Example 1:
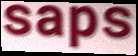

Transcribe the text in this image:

saps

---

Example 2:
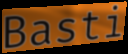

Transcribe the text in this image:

Basti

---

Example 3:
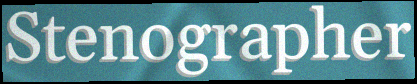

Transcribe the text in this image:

Stenographer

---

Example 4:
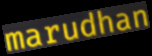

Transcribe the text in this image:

marudhan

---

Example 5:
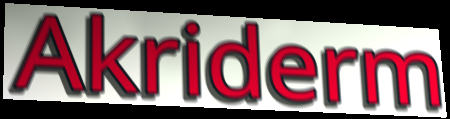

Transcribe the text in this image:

Akriderm